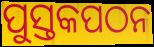
ପୁସ୍ତକପଠନ